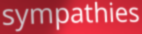
sympathies